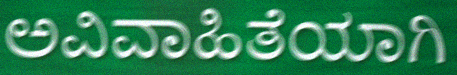
ಅವಿವಾಹಿತೆಯಾಗಿ